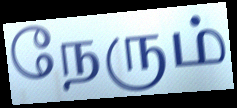
நேரும்